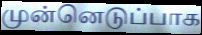
முன்னெடுப்பாக